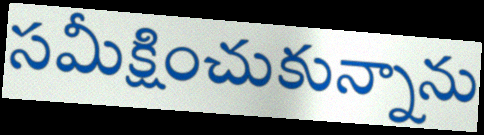
సమీక్షించుకున్నాను